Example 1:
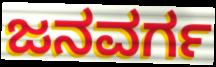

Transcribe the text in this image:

ಜನವರ್ಗ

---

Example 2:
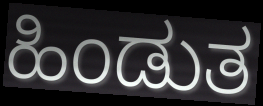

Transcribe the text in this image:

ಹಿಂಡುತ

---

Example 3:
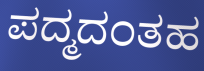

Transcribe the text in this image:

ಪದ್ಮದಂತಹ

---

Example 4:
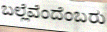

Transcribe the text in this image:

ಬಲ್ಲೆವೆಂದೆಂಬರು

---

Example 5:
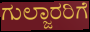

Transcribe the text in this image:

ಗುಲ್ಜಾರರಿಗೆ